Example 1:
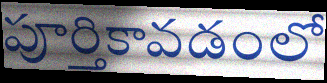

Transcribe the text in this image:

పూర్తికావడంలో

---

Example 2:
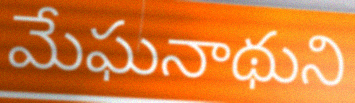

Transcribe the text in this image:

మేఘనాథుని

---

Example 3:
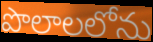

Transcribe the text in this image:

పొలాలలోను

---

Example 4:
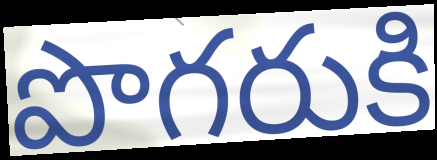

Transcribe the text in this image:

పొగరుకి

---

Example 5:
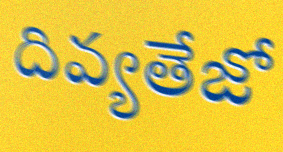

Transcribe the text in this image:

దివ్యతేజో